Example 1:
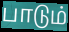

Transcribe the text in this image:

பாடும்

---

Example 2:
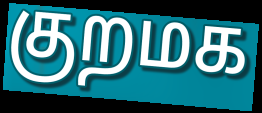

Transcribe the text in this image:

குறமக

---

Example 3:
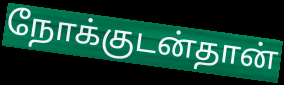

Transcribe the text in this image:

நோக்குடன்தான்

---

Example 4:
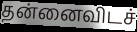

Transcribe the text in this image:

தன்னைவிடச்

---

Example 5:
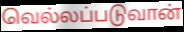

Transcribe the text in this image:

வெல்லப்படுவான்